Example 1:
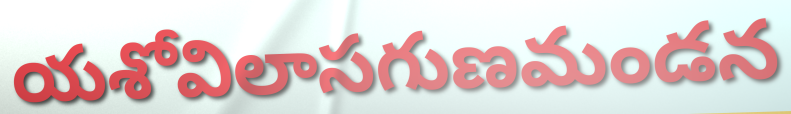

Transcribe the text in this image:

యశోవిలాసగుణమండన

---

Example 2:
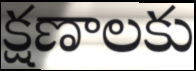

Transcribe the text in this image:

క్షణాలకు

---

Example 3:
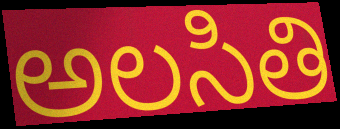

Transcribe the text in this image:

అలసితి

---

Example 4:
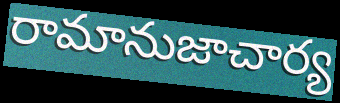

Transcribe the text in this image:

రామానుజాచార్య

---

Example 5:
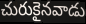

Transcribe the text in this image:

చురుకైనవాడు